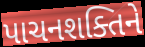
પાચનશક્તિને